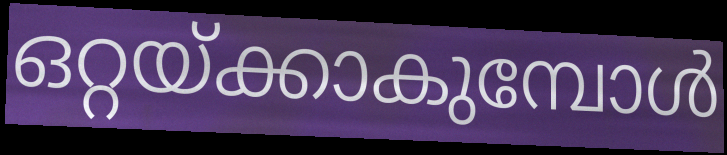
ഒറ്റയ്ക്കാകുമ്പോൾ